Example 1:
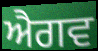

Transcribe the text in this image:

ਐਗਵ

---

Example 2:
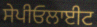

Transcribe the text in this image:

ਸੇਪੀਓਲਾਈਟ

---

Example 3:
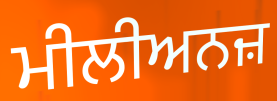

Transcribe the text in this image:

ਮੀਲੀਅਨਜ਼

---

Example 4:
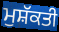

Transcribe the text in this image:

ਮੁਸ਼ੱਕਤੀ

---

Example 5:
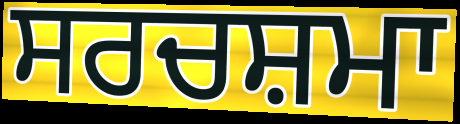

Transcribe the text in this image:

ਸਰਚਸ਼ਮਾ